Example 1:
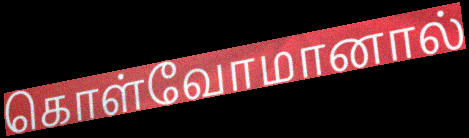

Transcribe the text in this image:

கொள்வோமானால்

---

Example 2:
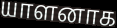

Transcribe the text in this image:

யாளனாக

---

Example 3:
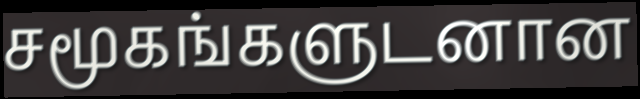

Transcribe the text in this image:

சமூகங்களுடனான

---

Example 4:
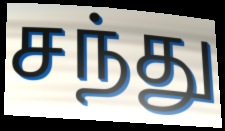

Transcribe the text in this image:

சந்து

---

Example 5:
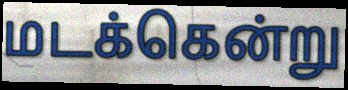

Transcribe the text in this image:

மடக்கென்று